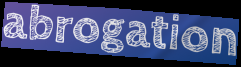
abrogation